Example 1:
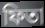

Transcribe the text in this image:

ফিতা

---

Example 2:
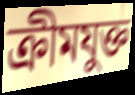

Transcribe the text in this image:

ক্ৰীমযুক্ত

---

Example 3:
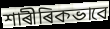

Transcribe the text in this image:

শাৰীৰিকভাবে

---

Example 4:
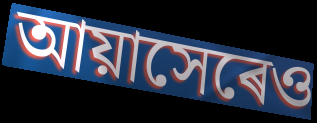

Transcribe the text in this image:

আয়াসেৰেও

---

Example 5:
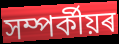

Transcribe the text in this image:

সম্পৰ্কীয়ৰ